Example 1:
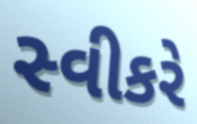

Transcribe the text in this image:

સ્વીકરે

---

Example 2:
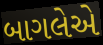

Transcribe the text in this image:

બાગલેએ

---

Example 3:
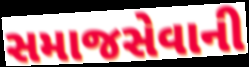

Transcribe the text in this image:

સમાજસેવાની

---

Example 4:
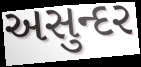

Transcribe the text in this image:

અસુન્દર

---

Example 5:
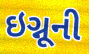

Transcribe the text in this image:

ઇગ્નૂની